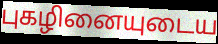
புகழினையுடைய